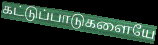
கட்டுப்பாடுகளையே